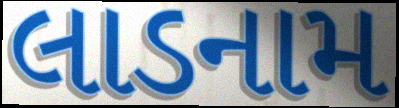
લાડનામ